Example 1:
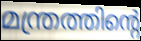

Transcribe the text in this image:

മന്ത്രത്തിന്റെ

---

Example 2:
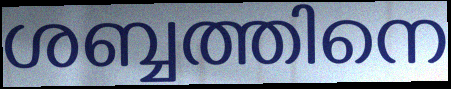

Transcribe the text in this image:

ശബ്ബത്തിനെ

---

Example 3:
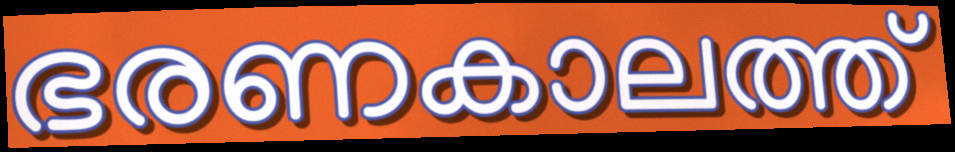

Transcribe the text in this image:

ഭരണകാലത്ത്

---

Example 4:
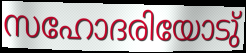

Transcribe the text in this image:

സഹോദരിയോടു്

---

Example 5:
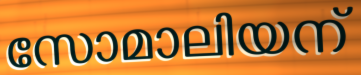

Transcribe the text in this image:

സോമാലിയന്